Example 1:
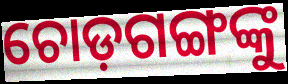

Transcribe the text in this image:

ଚୋଡ଼ଗଙ୍ଗଙ୍କୁ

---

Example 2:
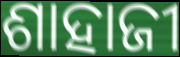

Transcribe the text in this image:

ଶାହାଜୀ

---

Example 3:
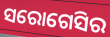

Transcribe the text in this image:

ସରୋଗେସିର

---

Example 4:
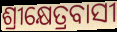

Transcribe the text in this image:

ଶ୍ରୀକ୍ଷେତ୍ରବାସୀ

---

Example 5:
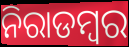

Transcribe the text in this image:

ନିରାଡମ୍ଵର